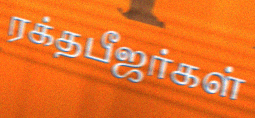
ரக்தபீஜர்கள்